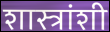
शास्त्रांशी